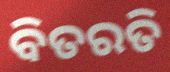
ବିତରତି